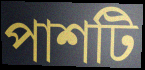
পাশটি